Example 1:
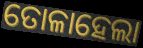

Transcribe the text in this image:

ତୋଳାହେଲା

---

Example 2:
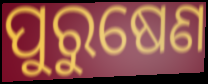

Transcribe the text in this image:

ପୁରୁଷେଣ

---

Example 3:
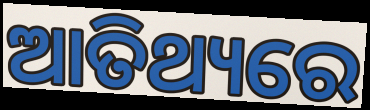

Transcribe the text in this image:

ଆତିଥ୍ୟରେ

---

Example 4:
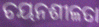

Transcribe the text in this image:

ଚୟନଶୀଳତା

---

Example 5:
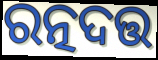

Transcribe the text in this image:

ରତ୍ନଦତ୍ତ